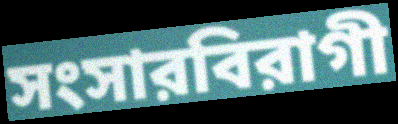
সংসারবিরাগী